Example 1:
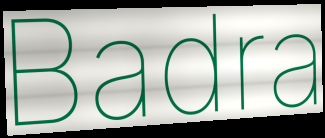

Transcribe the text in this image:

Badra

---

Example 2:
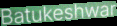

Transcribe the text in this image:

Batukeshwar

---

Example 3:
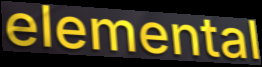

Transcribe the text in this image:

elemental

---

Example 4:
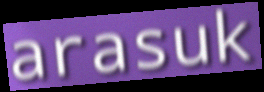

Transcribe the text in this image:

arasuk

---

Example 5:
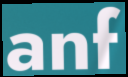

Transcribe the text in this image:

anf